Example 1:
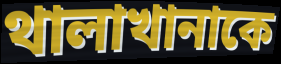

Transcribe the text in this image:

থালাখানাকে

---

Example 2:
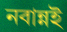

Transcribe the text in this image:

নবান্নই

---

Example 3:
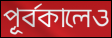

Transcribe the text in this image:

পূর্বকালেও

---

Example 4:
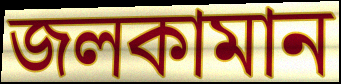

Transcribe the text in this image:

জলকামান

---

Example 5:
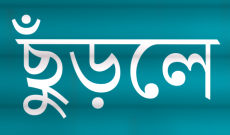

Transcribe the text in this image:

ছুঁড়লে